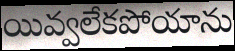
యివ్వలేకపోయాను